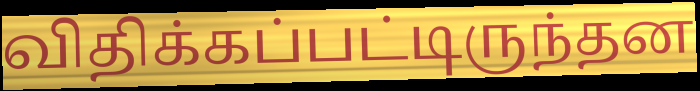
விதிக்கப்பட்டிருந்தன